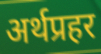
अर्थप्रहर